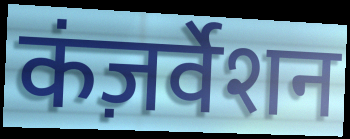
कंज़र्वेशन